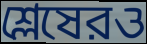
শ্লেষেরও